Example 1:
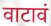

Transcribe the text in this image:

वाटावं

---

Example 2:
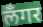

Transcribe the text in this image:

लँगर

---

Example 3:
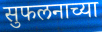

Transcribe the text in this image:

सुफलनाच्या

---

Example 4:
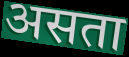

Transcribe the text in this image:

असता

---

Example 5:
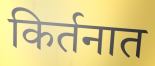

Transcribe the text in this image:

किर्तनात